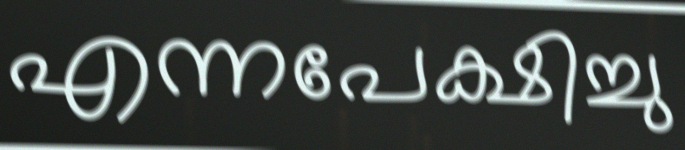
എന്നപേക്ഷിച്ചു